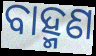
ବାହ୍ମଣ